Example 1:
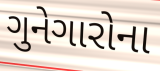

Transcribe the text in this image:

ગુનેગારોના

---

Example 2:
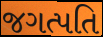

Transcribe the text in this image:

જગત્પતિ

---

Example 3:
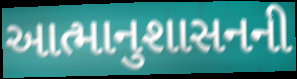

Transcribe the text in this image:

આત્માનુશાસનની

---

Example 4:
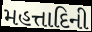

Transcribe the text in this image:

મહત્તાદિની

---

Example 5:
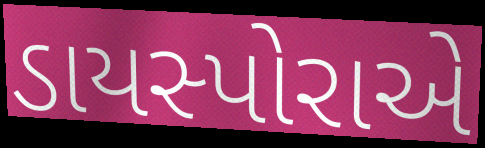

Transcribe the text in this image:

ડાયસ્પોરાએ